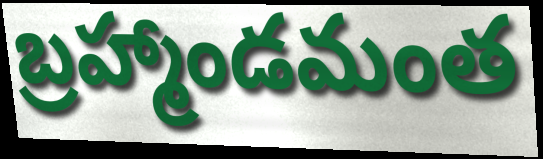
బ్రహ్మాండమంత